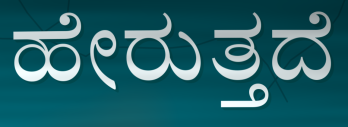
ಹೇರುತ್ತದೆ